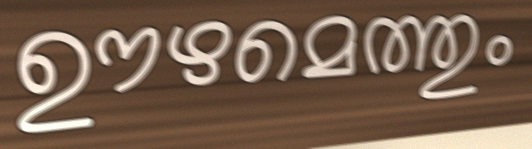
ഊഴമെത്തും